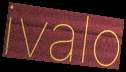
ivalo